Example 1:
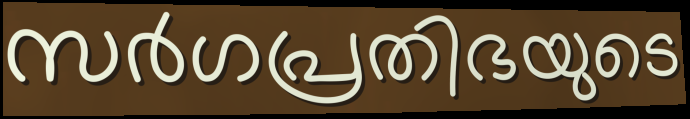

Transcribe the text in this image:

സർഗപ്രതിഭയുടെ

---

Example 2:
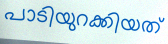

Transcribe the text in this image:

പാടിയുറക്കിയത്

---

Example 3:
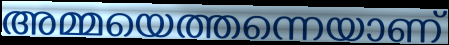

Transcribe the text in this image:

അമ്മയെത്തന്നെയാണ്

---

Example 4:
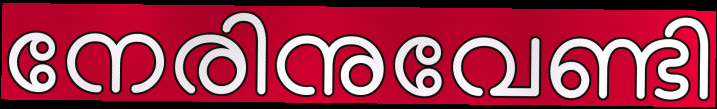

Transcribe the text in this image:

നേരിനുവേണ്ടി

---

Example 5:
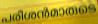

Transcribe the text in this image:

പരീശൻമാരുടെ